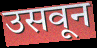
उसवून